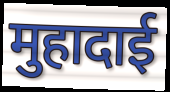
मुहादाई